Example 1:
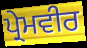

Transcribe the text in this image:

ਪ੍ਰੇਮਵੀਰ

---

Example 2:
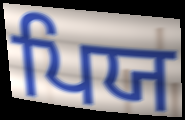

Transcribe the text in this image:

ਪਿਯ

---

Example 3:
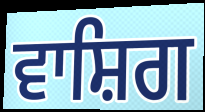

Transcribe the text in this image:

ਵਾਸ਼ਿਗ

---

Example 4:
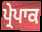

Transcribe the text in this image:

ਪ੍ਰੇਪਾਕ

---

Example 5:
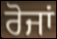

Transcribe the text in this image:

ਰੋਜਾਂ